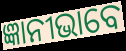
ଜ୍ଞାନୀଭାବେ